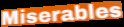
Miserables